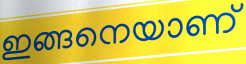
ഇങ്ങനെയാണ്